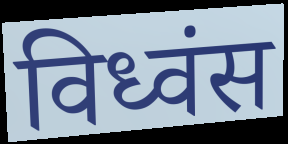
विध्वंस